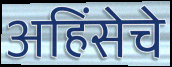
अहिंसेचे